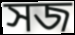
সজ